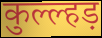
कुल्ल्हड़